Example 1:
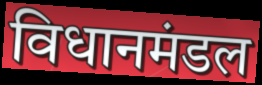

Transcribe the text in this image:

विधानमंडल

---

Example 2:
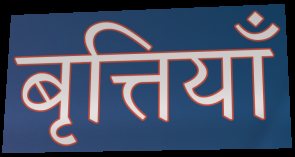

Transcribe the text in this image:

बृत्तियाँ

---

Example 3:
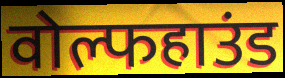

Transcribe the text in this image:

वोल्फहाउंड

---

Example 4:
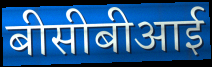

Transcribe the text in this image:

बीसीबीआई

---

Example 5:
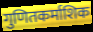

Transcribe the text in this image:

गुणितकर्माशिक